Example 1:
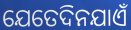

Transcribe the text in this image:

ଯେତେଦିନଯାଏଁ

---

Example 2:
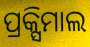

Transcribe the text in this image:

ପ୍ରକ୍ସିମାଲ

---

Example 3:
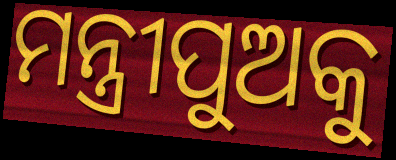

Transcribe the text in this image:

ମନ୍ତ୍ରୀପୁଅକୁ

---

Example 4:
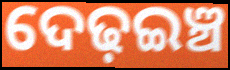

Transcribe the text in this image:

ଦେଢ଼ଇଞ୍ଚ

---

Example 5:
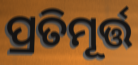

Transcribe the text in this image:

ପ୍ରତିମୂର୍ତ୍ତ